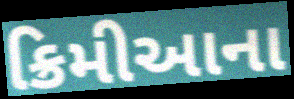
ક્રિમીઆના